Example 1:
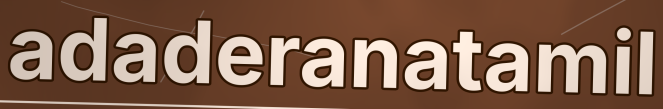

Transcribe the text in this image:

adaderanatamil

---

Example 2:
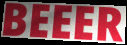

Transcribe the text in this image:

BEEER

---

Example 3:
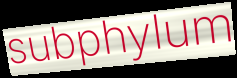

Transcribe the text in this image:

subphylum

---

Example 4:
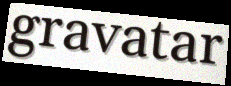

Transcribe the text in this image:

gravatar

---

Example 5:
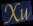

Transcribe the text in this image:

Xu